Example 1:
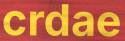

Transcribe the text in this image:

crdae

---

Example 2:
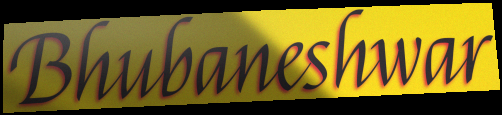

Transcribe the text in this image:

Bhubaneshwar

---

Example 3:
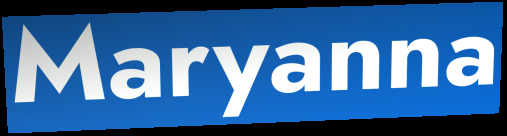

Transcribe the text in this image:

Maryanna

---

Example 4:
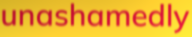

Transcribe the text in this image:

unashamedly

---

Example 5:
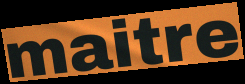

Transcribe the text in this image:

maitre